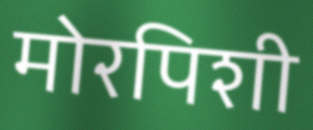
मोरपिशी